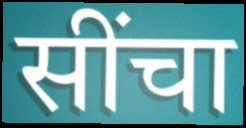
सींचा